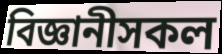
বিজ্ঞানীসকল